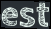
est